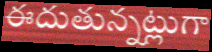
ఈదుతున్నట్లుగా